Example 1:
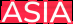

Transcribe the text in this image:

ASIA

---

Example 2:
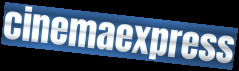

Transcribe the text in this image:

cinemaexpress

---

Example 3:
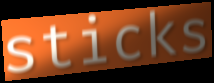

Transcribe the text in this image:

sticks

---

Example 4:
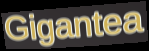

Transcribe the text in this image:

Gigantea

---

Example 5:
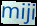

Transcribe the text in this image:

miji